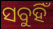
ସବୁହିଁ